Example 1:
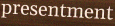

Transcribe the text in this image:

presentment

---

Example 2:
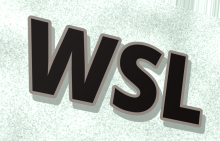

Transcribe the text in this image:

WSL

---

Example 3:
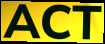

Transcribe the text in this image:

ACT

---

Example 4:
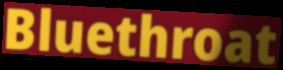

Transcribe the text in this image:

Bluethroat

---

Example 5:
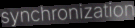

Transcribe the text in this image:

synchronization